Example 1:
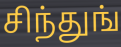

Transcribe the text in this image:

சிந்துங்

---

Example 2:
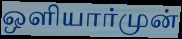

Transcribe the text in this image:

ஒளியார்முன்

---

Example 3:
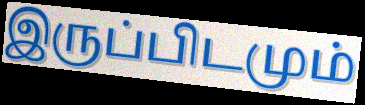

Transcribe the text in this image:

இருப்பிடமும்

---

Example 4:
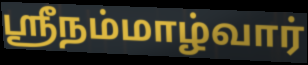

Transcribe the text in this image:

ஸ்ரீநம்மாழ்வார்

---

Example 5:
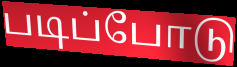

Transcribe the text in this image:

படிப்போடு